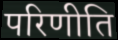
परिणीति